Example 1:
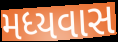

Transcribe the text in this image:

મધ્યવાસ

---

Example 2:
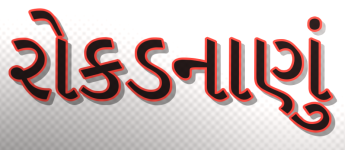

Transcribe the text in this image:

રોકડનાણું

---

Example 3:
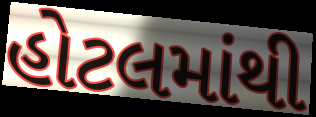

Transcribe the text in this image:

હોટલમાંથી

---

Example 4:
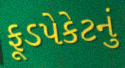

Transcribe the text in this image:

ફૂડપેકેટનું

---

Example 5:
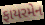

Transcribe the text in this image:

ફાયરમેન